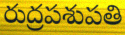
రుద్రపశుపతి